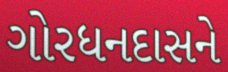
ગોરધનદાસને